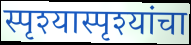
स्पृश्यास्पृश्यांचा